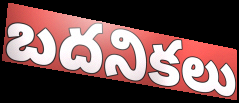
బదనికలు